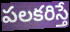
పలకరిస్తే